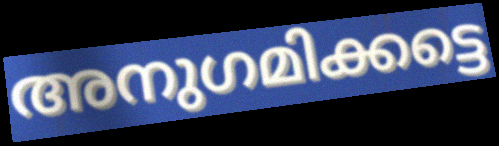
അനുഗമിക്കട്ടെ